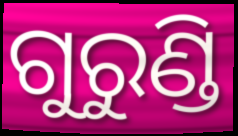
ଗୁରୁଣ୍ଡି